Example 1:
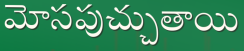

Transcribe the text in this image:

మోసపుచ్చుతాయి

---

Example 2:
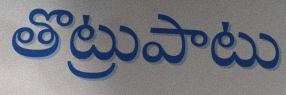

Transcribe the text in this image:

తొట్రుపాటు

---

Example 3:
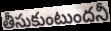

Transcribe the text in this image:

తీసుకుంటుందనీ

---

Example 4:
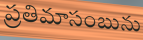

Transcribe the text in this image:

ప్రతిమాసంబును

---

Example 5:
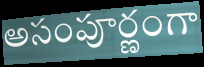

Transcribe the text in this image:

అసంపూర్ణంగా